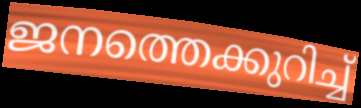
ജനത്തെക്കുറിച്ച്